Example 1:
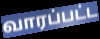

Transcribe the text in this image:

வாரப்பட்ட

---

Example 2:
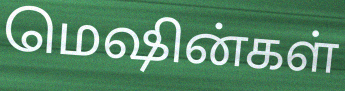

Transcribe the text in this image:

மெஷின்கள்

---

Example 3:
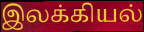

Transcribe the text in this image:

இலக்கியல்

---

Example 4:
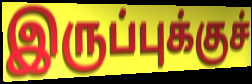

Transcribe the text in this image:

இருப்புக்குச்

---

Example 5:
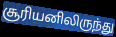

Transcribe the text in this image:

சூரியனிலிருந்து